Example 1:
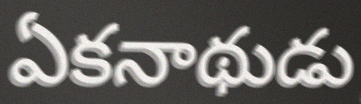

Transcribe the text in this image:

ఏకనాథుడు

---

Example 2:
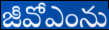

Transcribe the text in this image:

జీవోఎంను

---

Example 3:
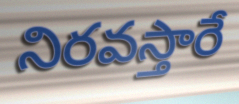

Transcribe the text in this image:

నిరవస్తారే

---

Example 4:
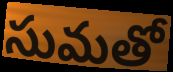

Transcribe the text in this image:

సుమతో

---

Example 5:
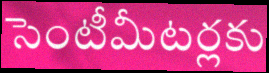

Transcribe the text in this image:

సెంటీమీటర్లకు